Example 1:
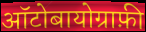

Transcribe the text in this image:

ऑटोबायोग्राफ़ी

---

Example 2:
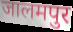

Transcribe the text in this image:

जालमपुर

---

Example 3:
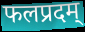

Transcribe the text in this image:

फलप्रदम्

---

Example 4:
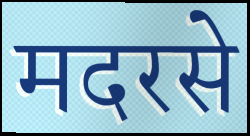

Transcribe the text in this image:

मदरसे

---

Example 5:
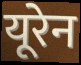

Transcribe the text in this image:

यूरेन